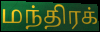
மந்திரக்